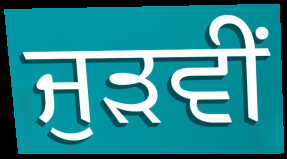
ਜੁੜਵੀਂ